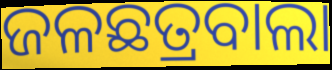
ଜଳଛତ୍ରବାଲା